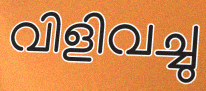
വിളിവച്ചു